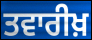
ਤਵਾਰੀਖ਼